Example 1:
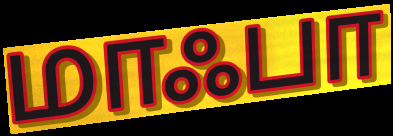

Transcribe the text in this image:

மாஃபா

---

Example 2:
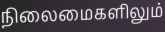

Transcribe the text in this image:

நிலைமைகளிலும்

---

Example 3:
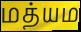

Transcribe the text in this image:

மத்யம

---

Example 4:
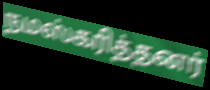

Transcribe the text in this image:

நமஸ்கரித்தனர்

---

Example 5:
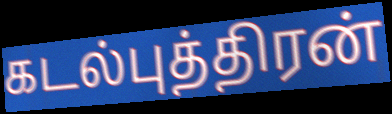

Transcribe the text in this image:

கடல்புத்திரன்